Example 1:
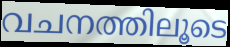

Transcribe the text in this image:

വചനത്തിലൂടെ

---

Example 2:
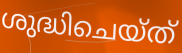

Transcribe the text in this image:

ശുദ്ധിചെയ്ത്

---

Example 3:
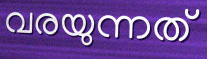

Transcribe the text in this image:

വരയുന്നത്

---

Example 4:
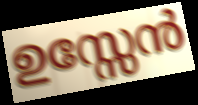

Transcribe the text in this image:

ഉസ്സേൻ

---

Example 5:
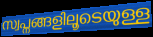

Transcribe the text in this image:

സ്വപ്നങ്ങളിലൂടെയുള്ള